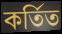
কৰ্তিত